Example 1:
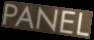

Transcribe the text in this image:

PANEL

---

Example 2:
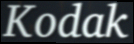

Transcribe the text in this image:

Kodak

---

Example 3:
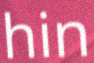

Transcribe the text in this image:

hin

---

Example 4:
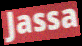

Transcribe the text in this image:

Jassa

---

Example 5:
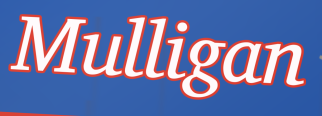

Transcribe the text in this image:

Mulligan